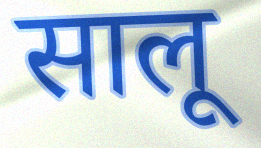
सालू